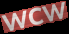
WCW